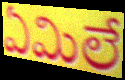
ఏమిలే